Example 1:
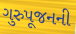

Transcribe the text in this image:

ગુરુપૂજનની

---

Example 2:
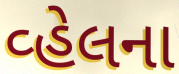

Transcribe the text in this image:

વ્હેલના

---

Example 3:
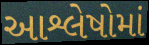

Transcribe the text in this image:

આશ્લેષોમાં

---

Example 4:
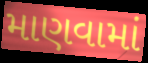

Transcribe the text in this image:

માણવામાં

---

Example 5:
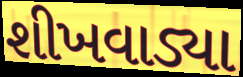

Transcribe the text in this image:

શીખવાડ્યા